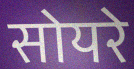
सोयरे